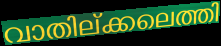
വാതില്ക്കലെത്തി